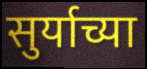
सुर्याच्या